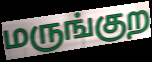
மருங்குற